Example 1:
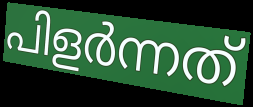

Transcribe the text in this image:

പിളർന്നത്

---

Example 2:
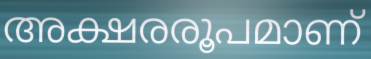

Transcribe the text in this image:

അക്ഷരരൂപമാണ്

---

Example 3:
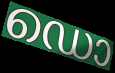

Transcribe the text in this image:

ഡൊ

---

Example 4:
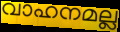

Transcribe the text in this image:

വാഹനമല്ല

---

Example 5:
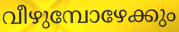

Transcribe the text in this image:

വീഴുമ്പോഴേക്കും